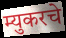
म्युकरचे